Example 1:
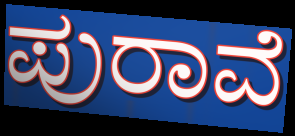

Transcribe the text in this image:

ಪುರಾವೆ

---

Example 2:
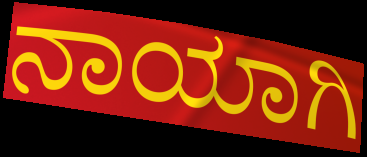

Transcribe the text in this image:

ನಾಯಾಗಿ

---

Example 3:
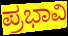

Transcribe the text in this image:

ಪ್ರಭಾವಿ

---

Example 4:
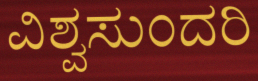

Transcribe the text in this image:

ವಿಶ್ವಸುಂದರಿ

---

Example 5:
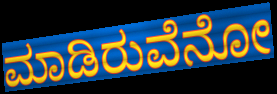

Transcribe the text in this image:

ಮಾಡಿರುವೆನೋ